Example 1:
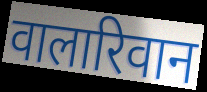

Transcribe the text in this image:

वालारिवान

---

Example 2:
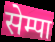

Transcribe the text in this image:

सेम्पा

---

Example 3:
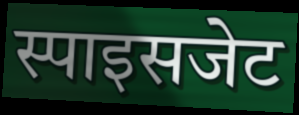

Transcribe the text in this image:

स्‍पाइसजेट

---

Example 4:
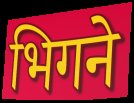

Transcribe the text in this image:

भिगने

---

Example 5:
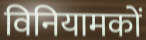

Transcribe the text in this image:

विनियामकों